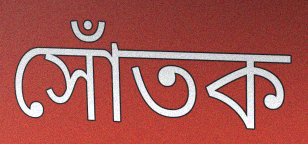
সোঁতক